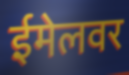
ईमेलवर